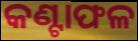
କଣ୍ଟାଫଳ